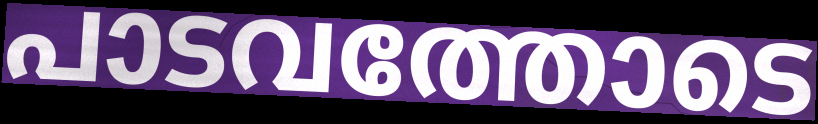
പാടവത്തോടെ